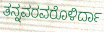
ತನ್ನವರವರೊಳಿರ್ದಾ